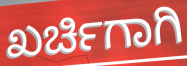
ಖರ್ಚಿಗಾಗಿ